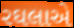
રઘલાએ